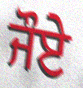
ਜੌਏ